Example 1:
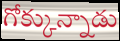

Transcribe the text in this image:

గోక్కున్నాడు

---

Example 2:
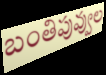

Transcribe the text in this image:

బంతిపువ్వుల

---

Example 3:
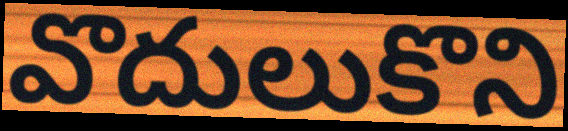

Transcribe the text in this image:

వొదులుకొని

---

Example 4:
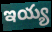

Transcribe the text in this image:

ఇయ్య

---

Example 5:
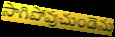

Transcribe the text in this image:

సాగిపోవుచుండెను